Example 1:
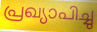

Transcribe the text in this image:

പ്രഖ്യാപിച്ചു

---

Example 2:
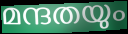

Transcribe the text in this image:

മന്ദതയും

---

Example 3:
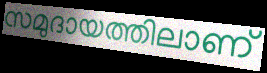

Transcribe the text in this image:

സമുദായത്തിലാണ്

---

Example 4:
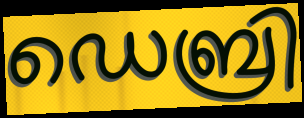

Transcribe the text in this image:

ഡെബ്രി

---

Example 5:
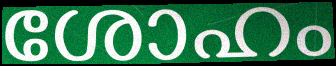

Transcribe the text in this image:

ശോഹം